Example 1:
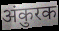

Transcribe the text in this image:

अंकुरक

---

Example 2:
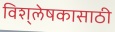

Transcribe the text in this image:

विश्लेषकासाठी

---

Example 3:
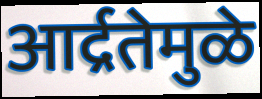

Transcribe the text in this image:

आर्द्रतेमुळे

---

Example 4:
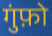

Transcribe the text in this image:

गुंफ़ो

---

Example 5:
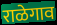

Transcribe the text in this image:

राळेगाव